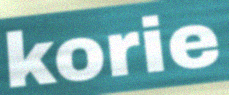
korie